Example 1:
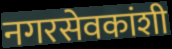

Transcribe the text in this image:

नगरसेवकांशी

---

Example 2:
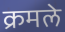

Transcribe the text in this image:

क्रमले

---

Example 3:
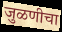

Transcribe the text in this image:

जुळणीचा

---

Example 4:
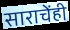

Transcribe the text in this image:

साराचेंही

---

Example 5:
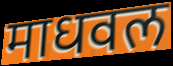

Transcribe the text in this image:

माधवल